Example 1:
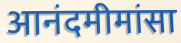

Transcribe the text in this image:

आनंदमीमांसा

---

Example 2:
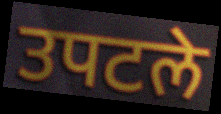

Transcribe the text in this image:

उपटले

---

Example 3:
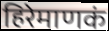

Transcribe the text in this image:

हिरेमाणकं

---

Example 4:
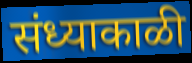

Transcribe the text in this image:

संध्याकाळी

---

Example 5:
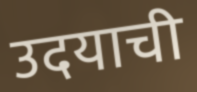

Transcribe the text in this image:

उदयाची